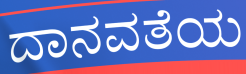
ದಾನವತೆಯ